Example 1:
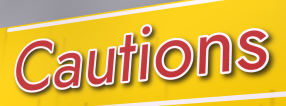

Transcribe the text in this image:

Cautions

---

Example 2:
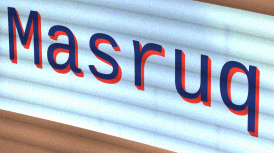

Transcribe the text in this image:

Masruq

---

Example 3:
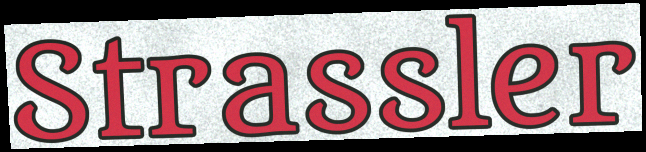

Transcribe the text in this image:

Strassler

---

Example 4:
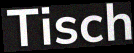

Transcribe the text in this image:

Tisch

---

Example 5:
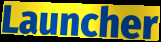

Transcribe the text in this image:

Launcher